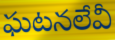
ఘటనలేవీ